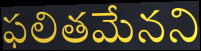
ఫలితమేనని